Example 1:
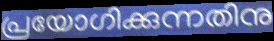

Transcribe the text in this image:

പ്രയോഗിക്കുന്നതിനു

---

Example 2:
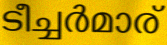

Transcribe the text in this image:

ടീച്ചർമാര്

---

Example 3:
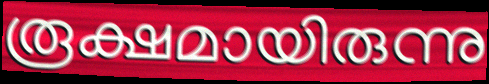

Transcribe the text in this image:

രൂക്ഷമായിരുന്നു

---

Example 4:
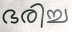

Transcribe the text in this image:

ഭരിച്ച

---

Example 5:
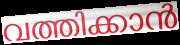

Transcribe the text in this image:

വത്തിക്കാൻ